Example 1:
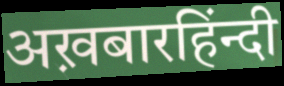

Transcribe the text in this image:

अख़बारहिंन्दी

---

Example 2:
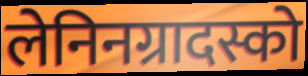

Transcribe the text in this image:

लेनिनग्रादस्को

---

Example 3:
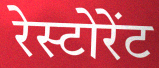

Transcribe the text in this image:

रेस्‍टोरेंट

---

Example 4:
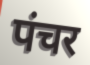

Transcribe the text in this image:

पंचर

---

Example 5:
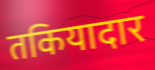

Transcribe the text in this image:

तकियादार